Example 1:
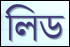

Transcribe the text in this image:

লিড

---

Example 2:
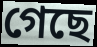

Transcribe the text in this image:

গেছে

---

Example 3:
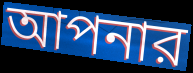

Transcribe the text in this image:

আপনার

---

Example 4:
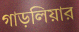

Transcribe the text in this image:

গাড়লিয়ার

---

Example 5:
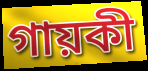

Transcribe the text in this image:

গায়কী